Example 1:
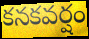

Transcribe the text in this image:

కనకవర్షం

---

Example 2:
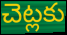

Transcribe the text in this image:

చెట్లకు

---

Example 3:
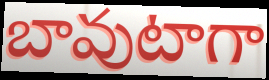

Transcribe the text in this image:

బావుటాగా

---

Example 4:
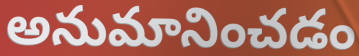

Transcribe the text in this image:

అనుమానించడం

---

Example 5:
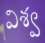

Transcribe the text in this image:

విశ్వ